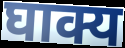
घाक्य